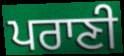
ਪਰਾਣੀ